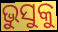
ଭୁସୁକୁ